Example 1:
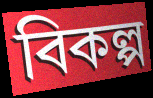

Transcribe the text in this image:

বিকল্প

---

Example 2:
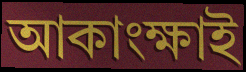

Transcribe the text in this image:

আকাংক্ষাই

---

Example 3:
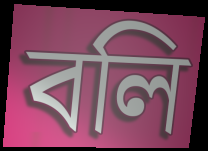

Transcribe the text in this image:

বলি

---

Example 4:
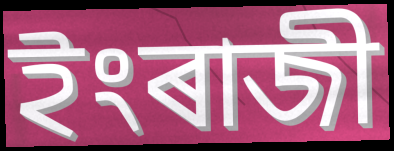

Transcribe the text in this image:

ইংৰাজী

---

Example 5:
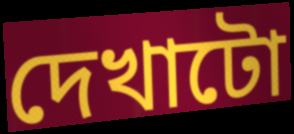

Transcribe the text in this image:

দেখাটো